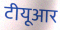
टीयूआर